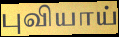
புவியாய்